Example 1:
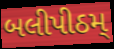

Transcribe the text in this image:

બલીપીઠમ્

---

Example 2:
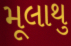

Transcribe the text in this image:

મૂલાથુ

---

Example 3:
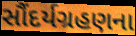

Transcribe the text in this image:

સૌંદર્યગ્રહણના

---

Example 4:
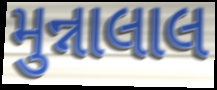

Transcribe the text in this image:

મુન્નાલાલ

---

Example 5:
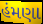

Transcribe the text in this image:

હંમણા